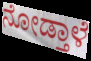
ನೋಡ್ತಾಳೆ